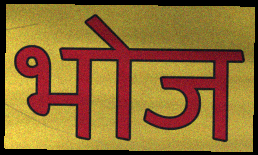
भोज